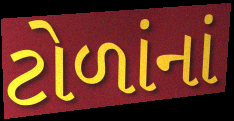
ટોળાંનાં